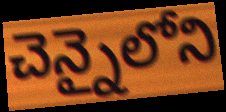
చెన్నైలోని